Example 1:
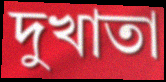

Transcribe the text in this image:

দুখাতা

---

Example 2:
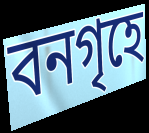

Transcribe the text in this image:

বনগৃহে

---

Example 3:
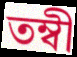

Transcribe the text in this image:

তম্বী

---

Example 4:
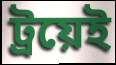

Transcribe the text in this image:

ট্রয়েই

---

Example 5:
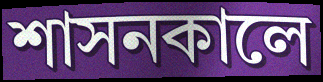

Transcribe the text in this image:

শাসনকালে